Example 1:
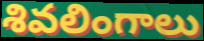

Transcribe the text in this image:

శివలింగాలు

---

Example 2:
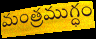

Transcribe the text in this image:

మంత్రముగ్ధం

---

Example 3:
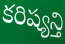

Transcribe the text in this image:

కరిష్యన్తి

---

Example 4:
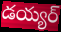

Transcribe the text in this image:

డయ్యర్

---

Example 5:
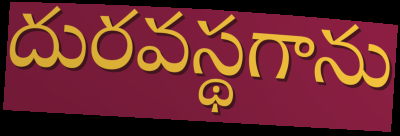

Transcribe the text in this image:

దురవస్థగాను